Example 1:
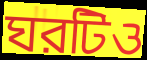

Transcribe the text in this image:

ঘরটিও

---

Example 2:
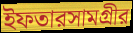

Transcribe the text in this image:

ইফতারসামগ্রীর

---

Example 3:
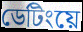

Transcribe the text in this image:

ডেটিংয়ে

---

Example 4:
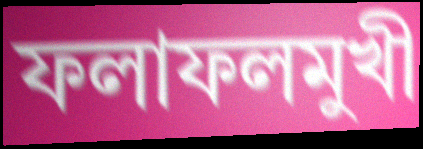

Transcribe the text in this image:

ফলাফলমুখী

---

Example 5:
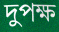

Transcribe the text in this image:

দুপক্ষ